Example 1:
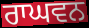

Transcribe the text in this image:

ਰਾਘਵਨ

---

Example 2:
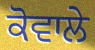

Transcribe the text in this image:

ਕੋਵਾਲੇ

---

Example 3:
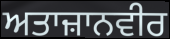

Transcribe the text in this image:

ਅਤਾਜ਼ਾਨਵੀਰ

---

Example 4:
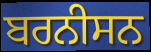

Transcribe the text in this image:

ਬਰਨੀਸਨ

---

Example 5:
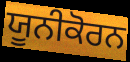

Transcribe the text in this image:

ਯੂਨੀਕੋਰਨ